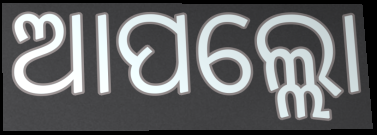
ଆପଲ୍ଲୋ